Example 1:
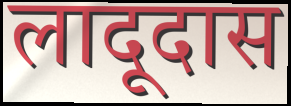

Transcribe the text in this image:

लादूदास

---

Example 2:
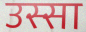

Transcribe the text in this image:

उस्सा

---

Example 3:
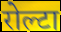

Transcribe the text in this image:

रोल्टा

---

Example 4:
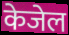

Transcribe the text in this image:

केजेल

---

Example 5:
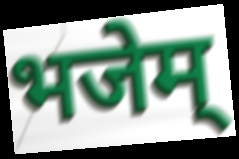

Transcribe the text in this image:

भजेम्